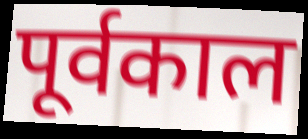
पूर्वकाल